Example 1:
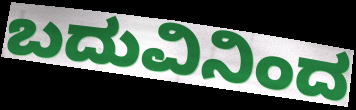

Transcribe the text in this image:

ಬದುವಿನಿಂದ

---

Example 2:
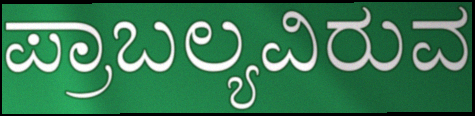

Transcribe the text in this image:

ಪ್ರಾಬಲ್ಯವಿರುವ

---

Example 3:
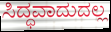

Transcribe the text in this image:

ಸಿದ್ಧವಾದುದಲ್ಲ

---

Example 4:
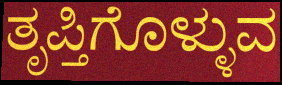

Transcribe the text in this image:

ತೃಪ್ತಿಗೊಳ್ಳುವ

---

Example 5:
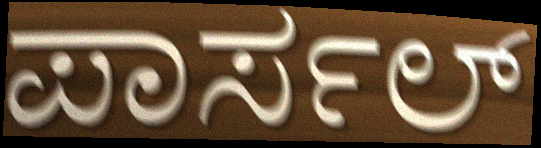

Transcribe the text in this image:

ಪಾರ್ಸಲ್